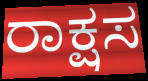
ರಾಕ್ಷಸ